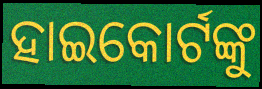
ହାଇକୋର୍ଟଙ୍କୁ